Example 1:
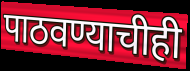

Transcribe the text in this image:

पाठवण्याचीही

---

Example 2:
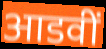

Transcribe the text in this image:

आडवीं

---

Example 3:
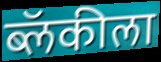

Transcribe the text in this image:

ब्लॅकीला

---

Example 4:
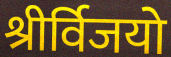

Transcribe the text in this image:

श्रीर्विजयो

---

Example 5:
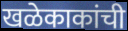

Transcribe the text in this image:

खळेकाकांची